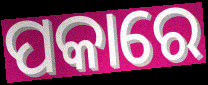
ପକାରେ